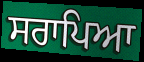
ਸਰਾਪਿਆ